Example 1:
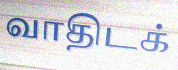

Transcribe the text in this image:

வாதிடக்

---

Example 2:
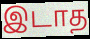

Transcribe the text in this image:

இடாத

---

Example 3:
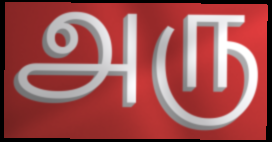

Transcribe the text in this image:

அரு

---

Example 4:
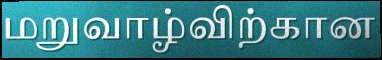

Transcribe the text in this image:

மறுவாழ்விற்கான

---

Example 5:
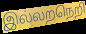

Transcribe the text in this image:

இல்லறநெறி